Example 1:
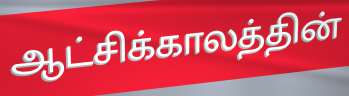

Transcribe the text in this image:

ஆட்சிக்காலத்தின்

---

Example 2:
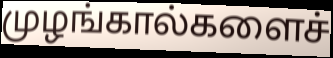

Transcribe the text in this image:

முழங்கால்களைச்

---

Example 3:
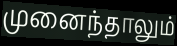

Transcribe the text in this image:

முனைந்தாலும்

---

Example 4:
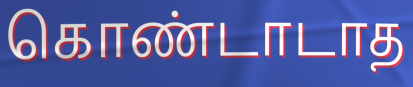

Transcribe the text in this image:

கொண்டாடாத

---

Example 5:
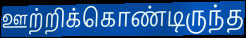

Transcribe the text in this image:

ஊற்றிக்கொண்டிருந்த